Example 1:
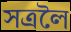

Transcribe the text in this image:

সত্ৰলৈ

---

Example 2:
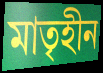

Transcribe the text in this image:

মাতৃহীন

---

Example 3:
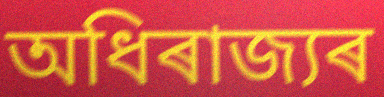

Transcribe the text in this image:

অধিৰাজ্যৰ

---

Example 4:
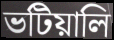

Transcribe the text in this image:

ভটিয়ালি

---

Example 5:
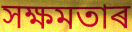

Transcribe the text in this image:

সক্ষমতাৰ